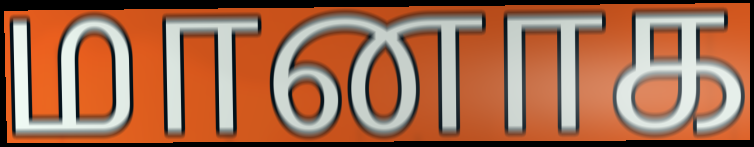
மானாக